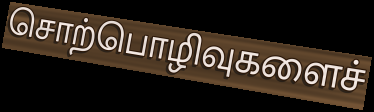
சொற்பொழிவுகளைச்